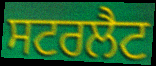
ਸਟਰਲੈਟ